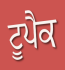
ਟੂਪੈਕ